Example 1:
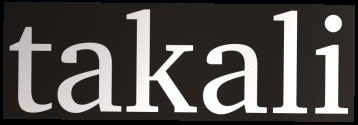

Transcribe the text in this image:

takali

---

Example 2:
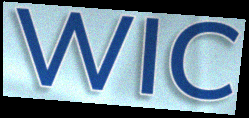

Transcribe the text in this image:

WIC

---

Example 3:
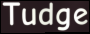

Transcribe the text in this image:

Tudge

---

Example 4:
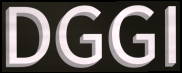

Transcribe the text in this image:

DGGI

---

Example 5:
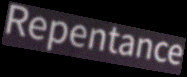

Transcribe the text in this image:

Repentance